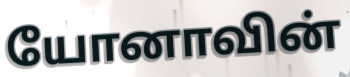
யோனாவின்